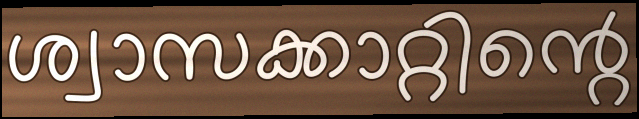
ശ്വാസക്കാറ്റിന്റെ